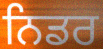
ਨਿਡਰ